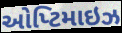
ઓપ્ટિમાઇઝ